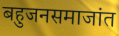
बहुजनसमाजांत